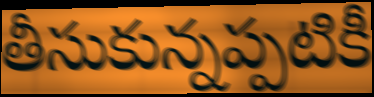
తీసుకున్నప్పటికీ